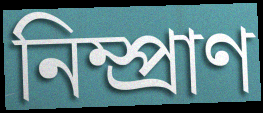
নিম্প্রাণ